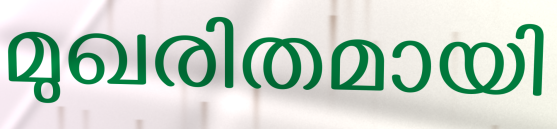
മുഖരിതമായി